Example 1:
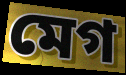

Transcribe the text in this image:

মেগ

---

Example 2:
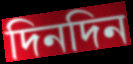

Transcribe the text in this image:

দিনদিন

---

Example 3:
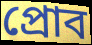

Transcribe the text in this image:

প্রোব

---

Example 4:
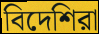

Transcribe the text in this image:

বিদেশিরা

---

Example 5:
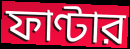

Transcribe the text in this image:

ফাণ্টার